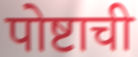
पोष्टाची